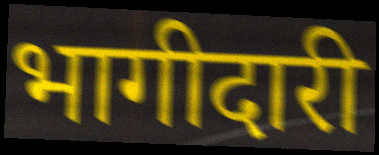
भागीदारी